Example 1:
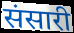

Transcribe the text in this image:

संसारी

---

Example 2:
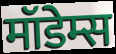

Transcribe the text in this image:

मॉडेम्स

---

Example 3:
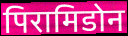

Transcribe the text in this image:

पिरामिडोन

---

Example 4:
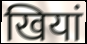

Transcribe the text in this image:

खियां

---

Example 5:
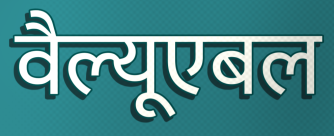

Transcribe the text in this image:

वैल्यूएबल